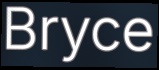
Bryce